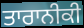
ਤਾਰਾਨੀਕੀ